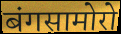
बंगसामोरो